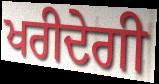
ਖਰੀਦੇਗੀ